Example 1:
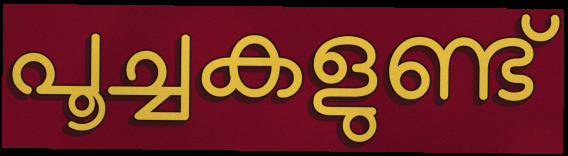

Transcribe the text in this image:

പൂച്ചകളുണ്ട്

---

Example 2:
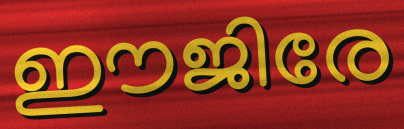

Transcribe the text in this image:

ഈജിരേ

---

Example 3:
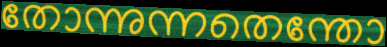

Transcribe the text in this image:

തോന്നുന്നതെന്തോ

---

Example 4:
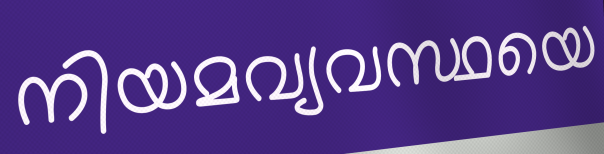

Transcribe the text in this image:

നിയമവ്യവസ്ഥയെ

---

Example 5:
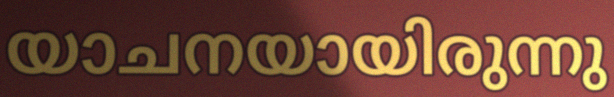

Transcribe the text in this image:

യാചനയായിരുന്നു